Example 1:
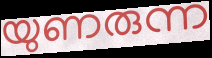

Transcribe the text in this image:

യുണരുന്ന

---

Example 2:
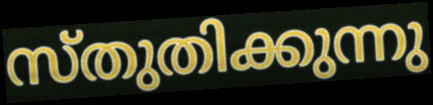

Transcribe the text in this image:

സ്തുതിക്കുന്നു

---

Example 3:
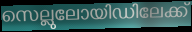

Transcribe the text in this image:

സെല്ലുലോയിഡിലേക്ക്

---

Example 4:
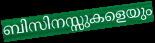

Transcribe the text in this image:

ബിസിനസ്സുകളെയും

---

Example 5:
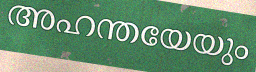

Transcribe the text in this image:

അഹന്തയേയും